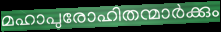
മഹാപുരോഹിതന്മാർക്കും